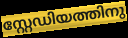
സ്റ്റേഡിയത്തിനു